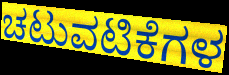
ಚಟುವಟಿಕೆಗಳ